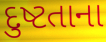
દુષ્ટતાના